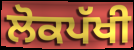
ਲੋਕਪੱਖੀ